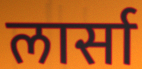
लार्सा